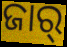
ଜାର୍